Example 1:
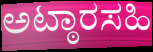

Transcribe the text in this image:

ಅಟ್ಠಾರಸಹಿ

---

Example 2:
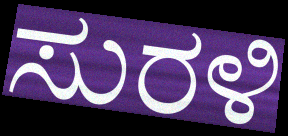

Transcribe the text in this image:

ಸುರಳಿ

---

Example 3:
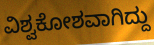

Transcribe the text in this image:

ವಿಶ್ವಕೋಶವಾಗಿದ್ದು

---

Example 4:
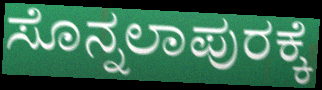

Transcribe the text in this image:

ಸೊನ್ನಲಾಪುರಕ್ಕೆ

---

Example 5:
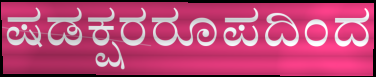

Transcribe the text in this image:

ಷಡಕ್ಷರರೂಪದಿಂದ